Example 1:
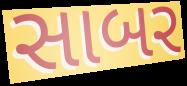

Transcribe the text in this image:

સાબર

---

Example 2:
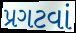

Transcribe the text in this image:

પ્રગટવાં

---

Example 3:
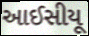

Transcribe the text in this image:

આઈસીયૂ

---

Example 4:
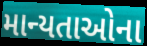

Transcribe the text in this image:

માન્યતાઓના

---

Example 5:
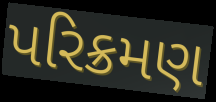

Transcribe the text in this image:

પરિક્રમણ